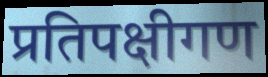
प्रतिपक्षीगण